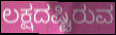
ಲಕ್ಷದಷ್ಟಿರುವ